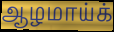
ஆழமாய்க்